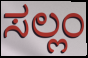
ಸಲ್ಲಂ